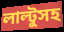
লাল্টুসহ